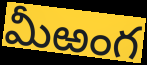
మీఱంగ